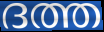
ദത്ത